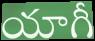
యాగీ